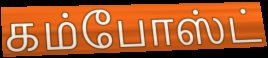
கம்போஸ்ட்